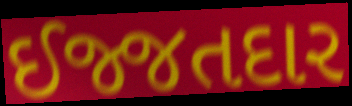
ઈજ્જતદાર